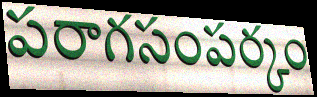
పరాగసంపర్కం